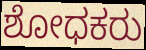
ಶೋಧಕರು